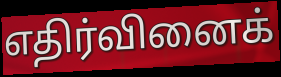
எதிர்வினைக்